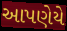
આપણેયે